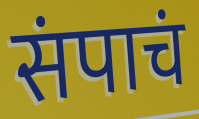
संपाचं